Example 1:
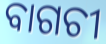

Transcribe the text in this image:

ବାଗଚୀ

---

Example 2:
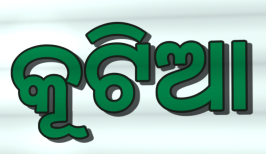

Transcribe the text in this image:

କୂଟିଆ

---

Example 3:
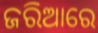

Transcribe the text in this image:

ଜରିଆରେ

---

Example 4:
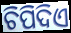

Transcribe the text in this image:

ଚିପିଦିଏ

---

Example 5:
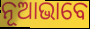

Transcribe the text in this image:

ନୂଆଭାବେ